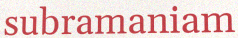
subramaniam